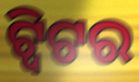
ଟ୍ୱିଟର